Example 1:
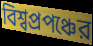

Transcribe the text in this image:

বিশ্বপ্রপঞ্চের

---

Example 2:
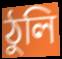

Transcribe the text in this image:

ঠুলি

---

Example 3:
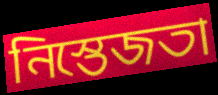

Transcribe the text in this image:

নিস্তেজতা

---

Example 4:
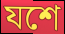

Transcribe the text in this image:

যশে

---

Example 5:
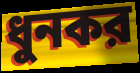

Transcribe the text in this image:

ধুনকর